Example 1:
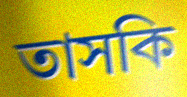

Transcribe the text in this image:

তাসকি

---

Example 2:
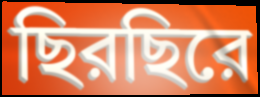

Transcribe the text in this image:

ছিরছিরে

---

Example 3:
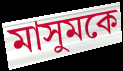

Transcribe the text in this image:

মাসুমকে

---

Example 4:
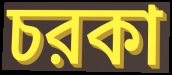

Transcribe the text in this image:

চরকা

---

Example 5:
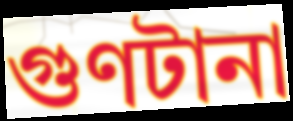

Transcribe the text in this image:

গুণটানা